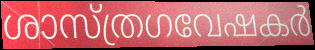
ശാസ്ത്രഗവേഷകർ